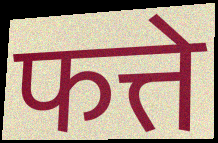
फत्ते